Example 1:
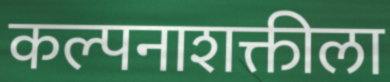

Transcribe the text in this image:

कल्पनाशक्तीला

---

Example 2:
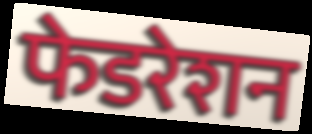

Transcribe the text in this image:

फेडरेशन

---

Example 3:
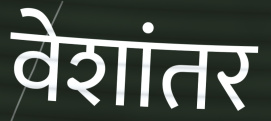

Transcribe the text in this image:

वेशांतर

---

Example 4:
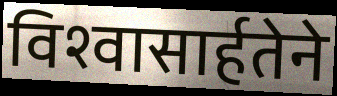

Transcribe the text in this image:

विश्वासार्हतेने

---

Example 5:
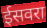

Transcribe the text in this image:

ईसवरा